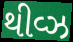
થીવ્ઝ